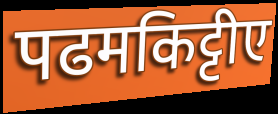
पढमकिट्टीए